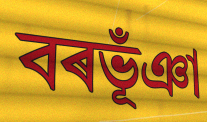
বৰভূঁঞা